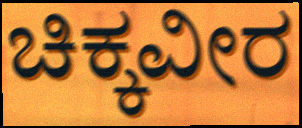
ಚಿಕ್ಕವೀರ